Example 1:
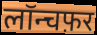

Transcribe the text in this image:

लॉन्चफ़र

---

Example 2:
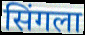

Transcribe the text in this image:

सिंगला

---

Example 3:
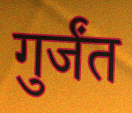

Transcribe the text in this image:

गुर्जंत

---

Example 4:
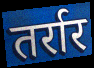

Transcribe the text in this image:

तर्रार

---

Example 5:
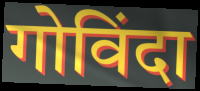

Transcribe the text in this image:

गोविंदा